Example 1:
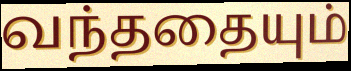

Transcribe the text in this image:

வந்ததையும்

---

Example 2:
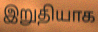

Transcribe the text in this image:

இறுதியாக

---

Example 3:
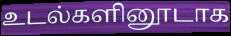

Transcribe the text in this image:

உடல்களினூடாக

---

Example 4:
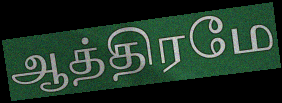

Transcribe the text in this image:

ஆத்திரமே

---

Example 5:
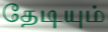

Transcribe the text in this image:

தேடியும்